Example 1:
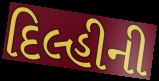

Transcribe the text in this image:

દિલ્હીની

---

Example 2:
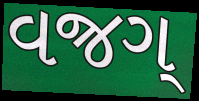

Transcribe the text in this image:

વજ્રગ્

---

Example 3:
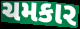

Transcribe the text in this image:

ચમકાર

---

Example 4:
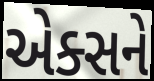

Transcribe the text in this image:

એક્સને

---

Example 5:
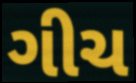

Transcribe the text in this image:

ગીચ